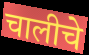
चालीचे